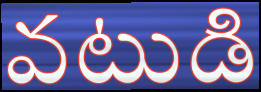
వటుడి